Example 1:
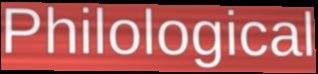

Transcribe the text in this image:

Philological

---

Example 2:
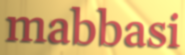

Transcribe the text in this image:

mabbasi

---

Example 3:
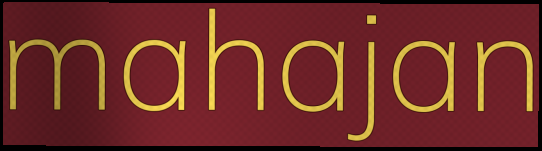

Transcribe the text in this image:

mahajan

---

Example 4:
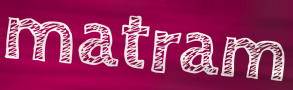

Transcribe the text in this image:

matram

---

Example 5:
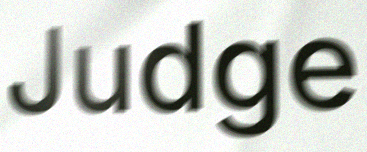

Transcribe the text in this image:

Judge